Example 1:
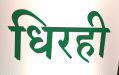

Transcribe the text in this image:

धिरही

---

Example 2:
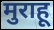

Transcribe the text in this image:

मुराहू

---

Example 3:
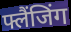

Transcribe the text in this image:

फ्लैंजिंग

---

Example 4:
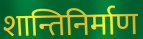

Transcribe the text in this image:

शान्तिनिर्माण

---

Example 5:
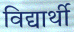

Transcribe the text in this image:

विद्यार्थी